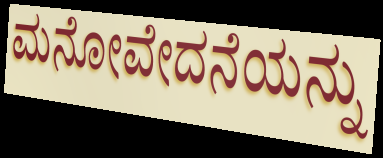
ಮನೋವೇದನೆಯನ್ನು